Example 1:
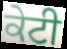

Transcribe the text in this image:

ਕੇਟੀ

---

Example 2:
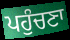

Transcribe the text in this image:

ਪਹੁੰਚਣਾ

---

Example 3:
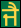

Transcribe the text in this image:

ਜੈ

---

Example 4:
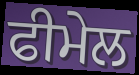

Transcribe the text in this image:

ਫੀਮੇਲ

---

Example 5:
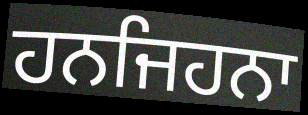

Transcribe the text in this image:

ਹਨਜਿਹਨਾ